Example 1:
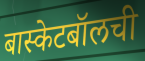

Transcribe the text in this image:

बास्केटबॉलची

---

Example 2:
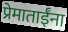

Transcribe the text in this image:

प्रेमाताईंना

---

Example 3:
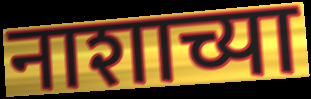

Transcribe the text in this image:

नाशाच्या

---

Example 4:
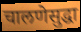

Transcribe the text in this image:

चालणेसुद्धा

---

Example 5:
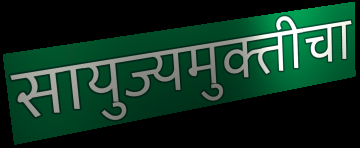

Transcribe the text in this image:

सायुज्यमुक्तीचा